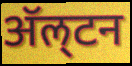
ॲल्टन